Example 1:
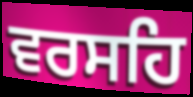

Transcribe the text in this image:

ਵਰਸਹਿ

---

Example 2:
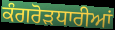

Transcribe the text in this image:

ਕੰਗਰੋੜਧਾਰੀਆਂ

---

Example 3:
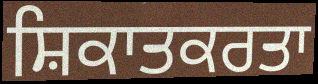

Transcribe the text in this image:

ਸ਼ਿਕਾਤਕਰਤਾ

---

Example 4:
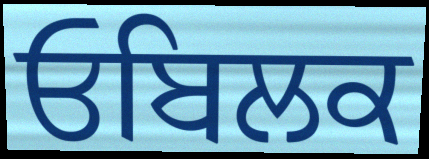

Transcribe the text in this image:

ਓਬਿਲਕ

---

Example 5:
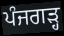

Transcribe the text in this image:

ਪੰਜਗੜ੍ਹ